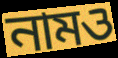
নামও